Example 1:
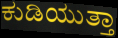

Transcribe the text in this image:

ಕುಡಿಯುತ್ತಾ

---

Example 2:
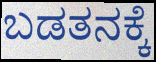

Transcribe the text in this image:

ಬಡತನಕ್ಕೆ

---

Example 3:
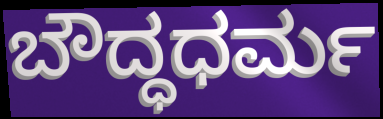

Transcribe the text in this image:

ಬೌದ್ಧಧರ್ಮ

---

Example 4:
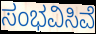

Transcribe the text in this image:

ಸಂಭವಿಸಿವೆ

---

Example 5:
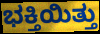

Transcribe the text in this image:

ಭಕ್ತಿಯಿತ್ತು